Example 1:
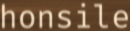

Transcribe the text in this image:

honsile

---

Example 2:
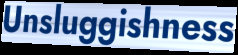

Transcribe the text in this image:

Unsluggishness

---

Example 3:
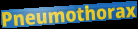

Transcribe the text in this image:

Pneumothorax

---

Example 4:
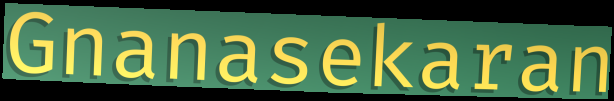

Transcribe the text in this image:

Gnanasekaran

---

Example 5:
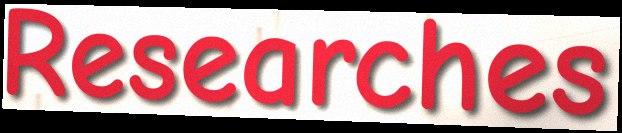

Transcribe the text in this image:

Researches